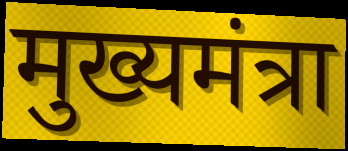
मुख्यमंत्रा